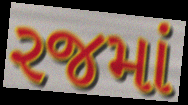
રજમાં